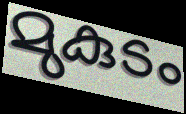
മുകുടം